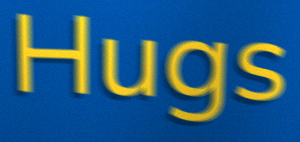
Hugs